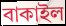
বাকাইল